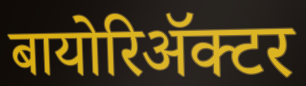
बायोरिॲक्टर